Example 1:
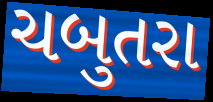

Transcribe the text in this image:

ચબુતરા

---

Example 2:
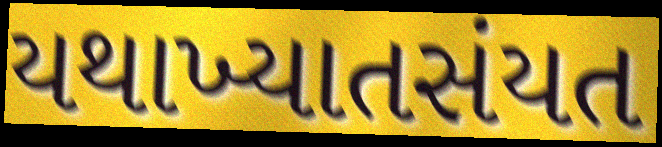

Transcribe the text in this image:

યથાખ્યાતસંયત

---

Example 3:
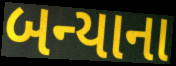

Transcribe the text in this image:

બન્યાના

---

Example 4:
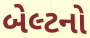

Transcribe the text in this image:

બેલ્ટનો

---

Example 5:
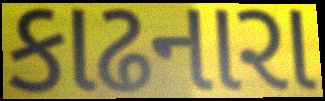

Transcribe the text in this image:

કાઢનારા